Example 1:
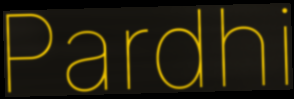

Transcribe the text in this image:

Pardhi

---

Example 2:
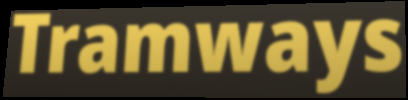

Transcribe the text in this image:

Tramways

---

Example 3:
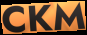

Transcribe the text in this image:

CKM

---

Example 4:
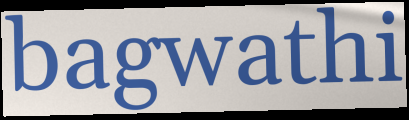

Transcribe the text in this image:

bagwathi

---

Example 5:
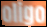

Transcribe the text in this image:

oligo